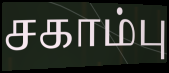
சகாம்பு